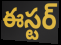
ఈస్టర్